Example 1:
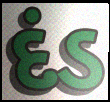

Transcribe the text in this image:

દંડ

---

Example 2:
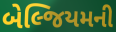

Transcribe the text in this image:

બેલ્જિયમની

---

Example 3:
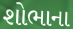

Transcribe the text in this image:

શોભાના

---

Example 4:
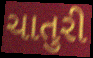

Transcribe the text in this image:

ચાતુરી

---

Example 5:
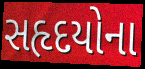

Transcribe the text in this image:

સહૃદયોના